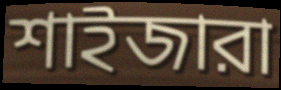
শাইজারা